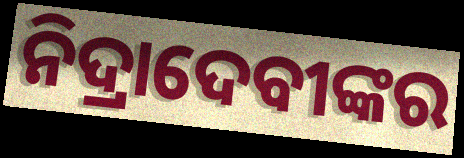
ନିଦ୍ରାଦେବୀଙ୍କର